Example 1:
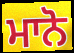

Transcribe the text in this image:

ਮਾਨੋ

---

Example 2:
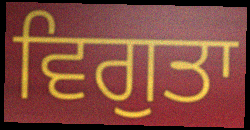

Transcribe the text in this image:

ਵਿਗੁਤਾ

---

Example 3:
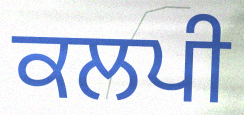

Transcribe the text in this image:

ਕਲਪੀ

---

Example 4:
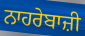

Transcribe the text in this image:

ਨਾਹਰੇਬਾਜ਼ੀ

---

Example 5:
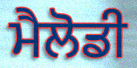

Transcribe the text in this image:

ਮੈਲੋਡੀ